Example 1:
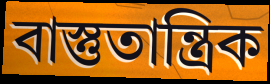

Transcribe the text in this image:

বাস্তুতান্ত্রিক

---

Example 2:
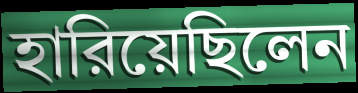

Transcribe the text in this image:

হারিয়েছিলেন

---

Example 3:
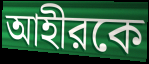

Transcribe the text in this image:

আহীরকে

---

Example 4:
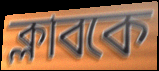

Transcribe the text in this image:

ক্লাবকে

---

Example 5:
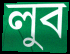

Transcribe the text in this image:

লুব